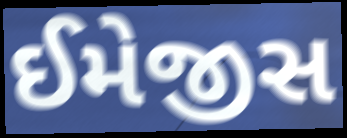
ઈમેજીસ